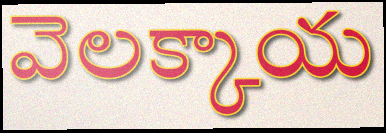
వెలక్కాయ